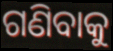
ଗଣିବାକୁ